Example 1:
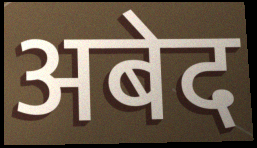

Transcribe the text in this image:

अबेद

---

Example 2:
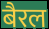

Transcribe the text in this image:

बैरल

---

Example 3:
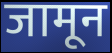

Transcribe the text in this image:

जामून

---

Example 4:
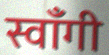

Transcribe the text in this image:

स्वाँगी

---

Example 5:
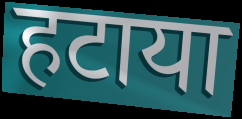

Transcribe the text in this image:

हटाया